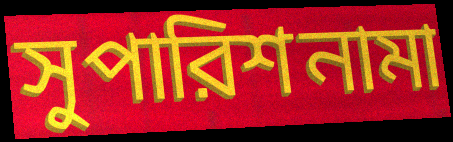
সুপারিশনামা